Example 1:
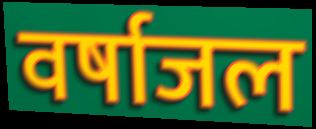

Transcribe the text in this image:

वर्षाजल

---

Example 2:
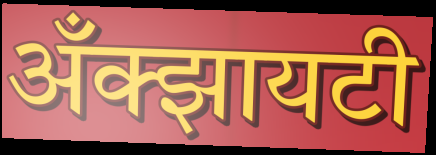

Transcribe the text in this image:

अँक्झायटी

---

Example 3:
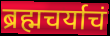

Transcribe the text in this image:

ब्रह्मचर्याचं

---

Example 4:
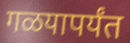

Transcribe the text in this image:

गळयापर्यंत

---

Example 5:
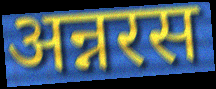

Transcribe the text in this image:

अन्नरस